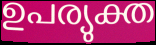
ഉപര്യുക്ത